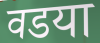
वडया